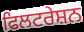
ਫਿਲਟਰੇਸ਼ਨ